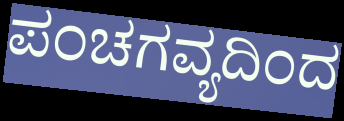
ಪಂಚಗವ್ಯದಿಂದ